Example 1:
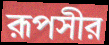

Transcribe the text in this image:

রূপসীর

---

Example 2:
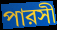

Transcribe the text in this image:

পারসী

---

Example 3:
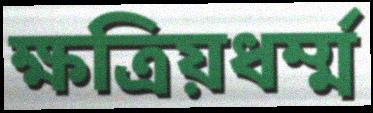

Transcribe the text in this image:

ক্ষত্রিয়ধর্ম্ম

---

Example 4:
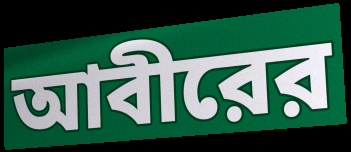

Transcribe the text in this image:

আবীরের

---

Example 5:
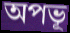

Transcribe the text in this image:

অপভূ